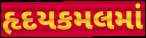
હૃદયકમલમાં